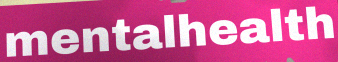
mentalhealth